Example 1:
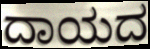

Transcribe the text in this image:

ದಾಯದ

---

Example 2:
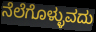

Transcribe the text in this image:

ನೆಲೆಗೊಳ್ಳುವದು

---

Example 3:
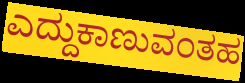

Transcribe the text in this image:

ಎದ್ದುಕಾಣುವಂತಹ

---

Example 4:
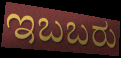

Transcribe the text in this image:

ಇಬಬರು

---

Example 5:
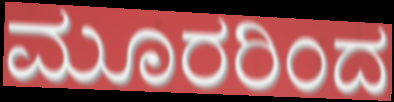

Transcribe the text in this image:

ಮೂರರಿಂದ